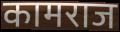
कामराज